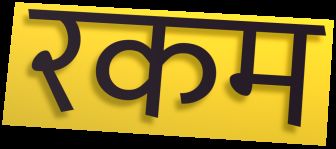
रकम